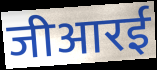
जीआरई